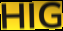
HIG